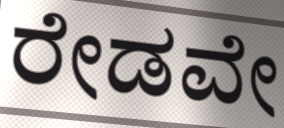
ರೇಡವೇ